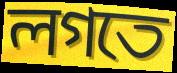
লগতে